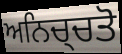
ਅਨਿਚ੍ਚਤੋ